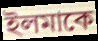
ইলমাকে